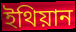
ইথিয়ান